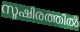
സുഷിരത്തിൽ